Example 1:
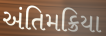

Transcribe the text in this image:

અંતિમક્રિયા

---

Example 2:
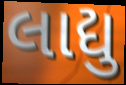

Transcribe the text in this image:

લાદ્યુ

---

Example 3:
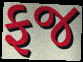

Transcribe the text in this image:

ફજ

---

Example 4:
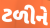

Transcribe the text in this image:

ટળીને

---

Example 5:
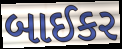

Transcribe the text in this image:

બાઈકર